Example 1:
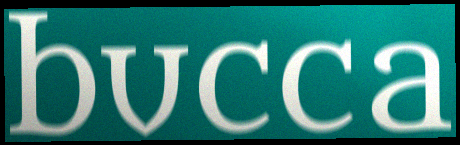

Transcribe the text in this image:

bucca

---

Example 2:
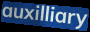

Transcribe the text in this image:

auxilliary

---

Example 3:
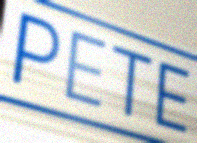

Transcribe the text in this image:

PETE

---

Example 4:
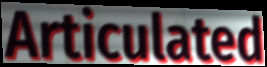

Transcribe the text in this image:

Articulated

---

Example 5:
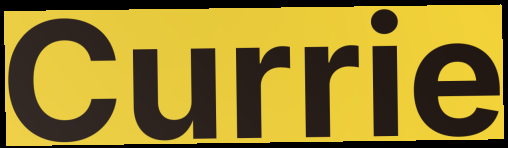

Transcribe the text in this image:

Currie